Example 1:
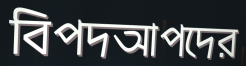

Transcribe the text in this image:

বিপদআপদের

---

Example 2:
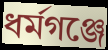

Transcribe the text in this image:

ধর্মগঞ্জে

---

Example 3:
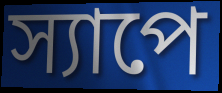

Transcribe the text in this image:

স্যাপে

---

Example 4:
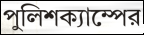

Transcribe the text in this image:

পুলিশক্যাম্পের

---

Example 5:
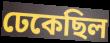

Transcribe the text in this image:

ঢেকেছিল